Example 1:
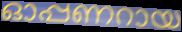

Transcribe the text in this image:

ഓപ്പണറായ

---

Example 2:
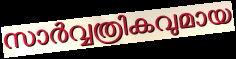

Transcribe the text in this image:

സാർവ്വത്രികവുമായ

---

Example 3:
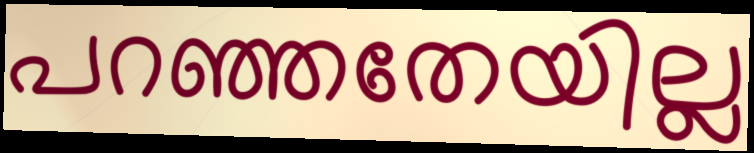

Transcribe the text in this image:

പറഞ്ഞതേയില്ല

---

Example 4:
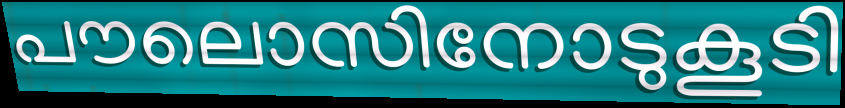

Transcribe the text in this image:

പൗലൊസിനോടുകൂടി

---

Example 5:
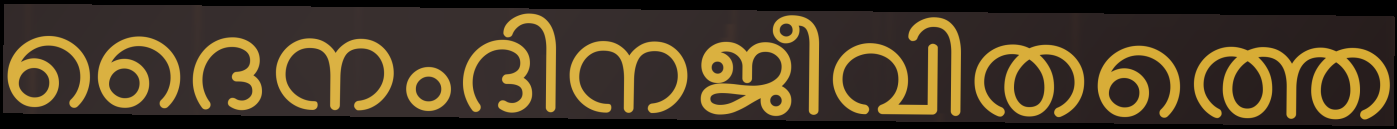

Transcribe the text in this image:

ദൈനംദിനജീവിതത്തെ